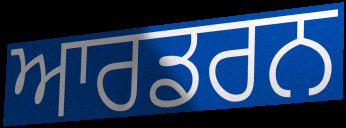
ਆਰਡਰਨ